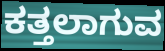
ಕತ್ತಲಾಗುವ